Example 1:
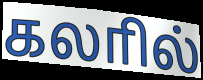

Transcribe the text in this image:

கலரில்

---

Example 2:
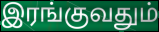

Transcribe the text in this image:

இரங்குவதும்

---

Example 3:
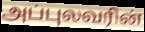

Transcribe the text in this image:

அப்புலவரின்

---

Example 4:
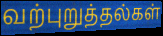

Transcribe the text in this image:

வற்புறுத்தல்கள்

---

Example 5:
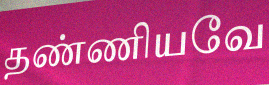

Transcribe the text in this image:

தண்ணியவே